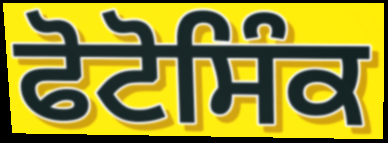
ਫੋਟੋਸਿੰਕ